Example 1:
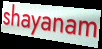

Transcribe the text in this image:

shayanam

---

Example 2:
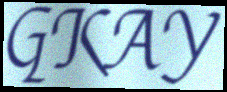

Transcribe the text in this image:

GKAY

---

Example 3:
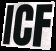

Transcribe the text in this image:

ICF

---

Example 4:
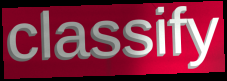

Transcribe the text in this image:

classify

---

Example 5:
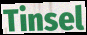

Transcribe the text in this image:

Tinsel